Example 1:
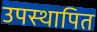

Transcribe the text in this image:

उपस्थापित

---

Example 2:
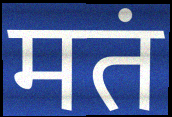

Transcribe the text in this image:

मतं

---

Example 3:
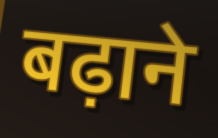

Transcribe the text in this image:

बढ़ाने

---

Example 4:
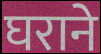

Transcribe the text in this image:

घराने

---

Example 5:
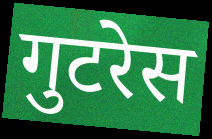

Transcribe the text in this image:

गुटरेस